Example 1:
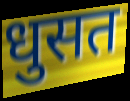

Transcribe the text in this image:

धुसत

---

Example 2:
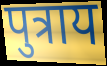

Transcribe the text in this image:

पुत्राय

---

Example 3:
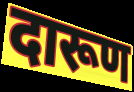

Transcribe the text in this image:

दारूण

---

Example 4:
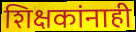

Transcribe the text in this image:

शिक्षकांनाही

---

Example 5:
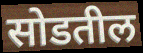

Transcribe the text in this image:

सोडतील